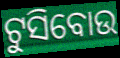
ଟୁସିବୋଉ